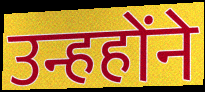
उन्हहोंने